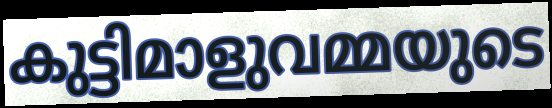
കുട്ടിമാളുവമ്മയുടെ